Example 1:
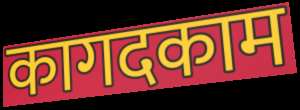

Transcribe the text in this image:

कागदकाम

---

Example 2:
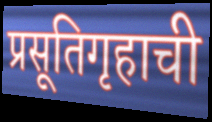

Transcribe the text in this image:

प्रसूतिगृहाची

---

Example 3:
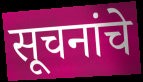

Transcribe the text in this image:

सूचनांचे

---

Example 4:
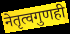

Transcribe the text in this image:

नेतृत्वगुणही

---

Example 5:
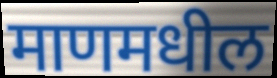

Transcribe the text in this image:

माणमधील